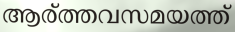
ആര്ത്തവസമയത്ത്